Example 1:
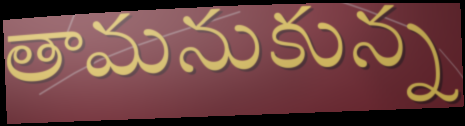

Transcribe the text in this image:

తామనుకున్న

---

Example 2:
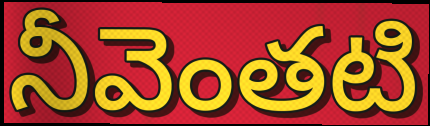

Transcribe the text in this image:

నీవెంతటి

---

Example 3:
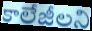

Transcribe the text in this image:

కాలేజీలని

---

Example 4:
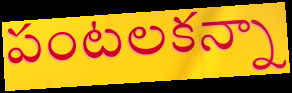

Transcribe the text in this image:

పంటలకన్నా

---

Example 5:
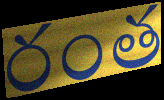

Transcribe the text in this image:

రంత